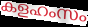
കളഹംസം